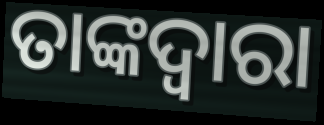
ତାଙ୍କଦ୍ୱାରା